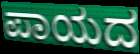
ಪಾಯದ